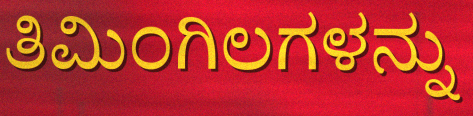
ತಿಮಿಂಗಿಲಗಳನ್ನು